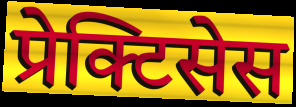
प्रेक्टिसेस